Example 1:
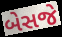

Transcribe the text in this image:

બેસજે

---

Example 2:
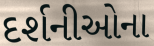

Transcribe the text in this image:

દર્શનીઓના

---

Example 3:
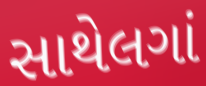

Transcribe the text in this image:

સાથેલગાં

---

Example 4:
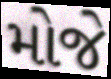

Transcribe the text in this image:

મોજે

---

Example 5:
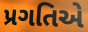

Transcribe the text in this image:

પ્રગતિએ